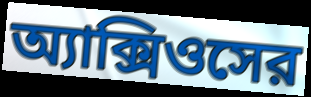
অ্যাক্সিওসের